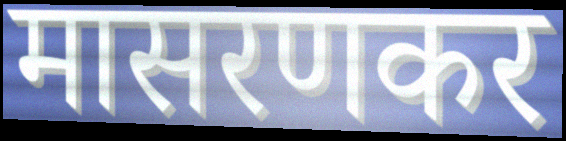
मासरणकर